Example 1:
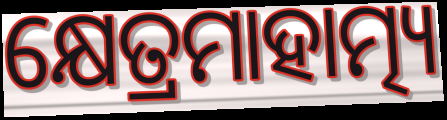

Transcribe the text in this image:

କ୍ଷେତ୍ରମାହାତ୍ମ୍ୟ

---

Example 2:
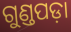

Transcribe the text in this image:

ଗୁଣ୍ଡପଡ଼ା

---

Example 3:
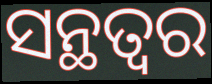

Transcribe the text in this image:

ସନ୍ଥତ୍ବର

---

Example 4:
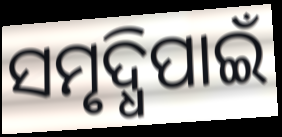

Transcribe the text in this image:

ସମୃଦ୍ଧିପାଇଁ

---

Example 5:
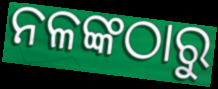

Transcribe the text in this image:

ନଳଙ୍କଠାରୁ